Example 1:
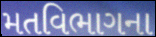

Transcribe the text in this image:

મતવિભાગના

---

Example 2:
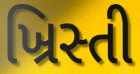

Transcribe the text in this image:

ખ્રિસ્તી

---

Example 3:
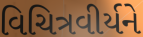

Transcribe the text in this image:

વિચિત્રવીર્યને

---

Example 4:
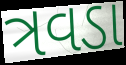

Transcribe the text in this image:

ત્રવડા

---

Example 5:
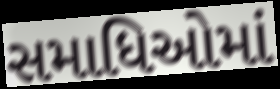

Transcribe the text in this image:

સમાધિઓમાં